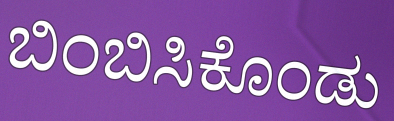
ಬಿಂಬಿಸಿಕೊಂಡು